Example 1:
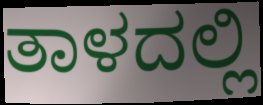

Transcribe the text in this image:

ತಾಳದಲ್ಲಿ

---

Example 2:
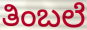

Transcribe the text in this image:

ತಿಂಬಲೆ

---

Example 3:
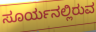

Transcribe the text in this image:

ಸೂರ್ಯನಲ್ಲಿರುವ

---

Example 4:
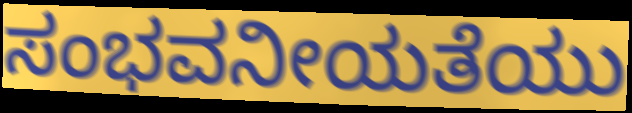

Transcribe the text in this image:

ಸಂಭವನೀಯತೆಯು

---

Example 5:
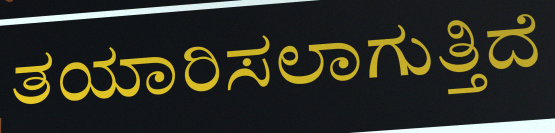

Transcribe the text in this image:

ತಯಾರಿಸಲಾಗುತ್ತಿದೆ